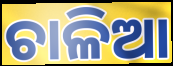
ଚାଳିଆ